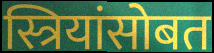
स्त्रियांसोबत